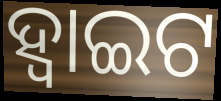
ହ୍ୱାଇଟ